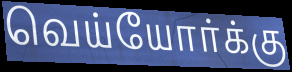
வெய்யோர்க்கு